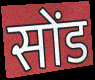
सोंड